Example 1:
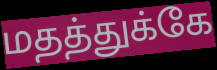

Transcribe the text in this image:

மதத்துக்கே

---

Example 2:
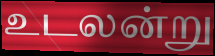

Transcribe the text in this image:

உடலன்று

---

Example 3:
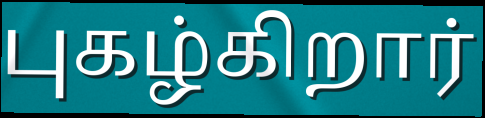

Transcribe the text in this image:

புகழ்கிறார்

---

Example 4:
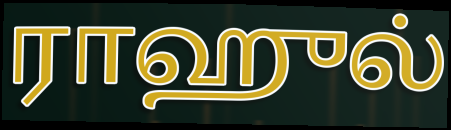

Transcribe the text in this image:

ராஹுல்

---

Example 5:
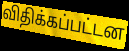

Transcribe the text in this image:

விதிக்கப்பட்டன